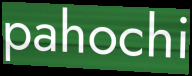
pahochi